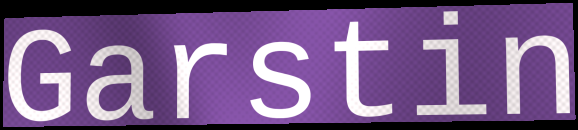
Garstin